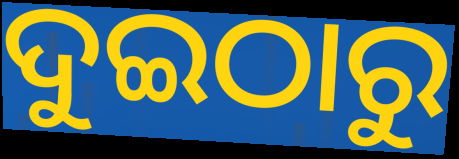
ଦୁଇଠାରୁ